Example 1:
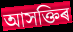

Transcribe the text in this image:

আসক্তিৰ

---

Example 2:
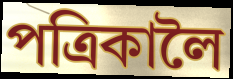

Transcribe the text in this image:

পত্ৰিকালৈ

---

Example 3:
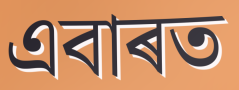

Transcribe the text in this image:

এবাৰত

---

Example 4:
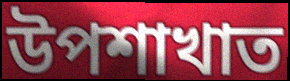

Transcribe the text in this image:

উপশাখাত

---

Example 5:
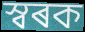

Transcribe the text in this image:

স্বৰক